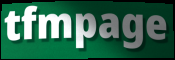
tfmpage